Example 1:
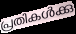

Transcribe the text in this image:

പ്രതികൾക്കു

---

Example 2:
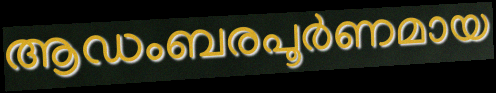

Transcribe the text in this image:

ആഡംബരപൂർണമായ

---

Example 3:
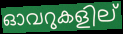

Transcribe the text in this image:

ഓവറുകളില്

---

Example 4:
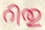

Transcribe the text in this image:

റിതു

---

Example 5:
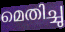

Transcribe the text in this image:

മെതിച്ചു